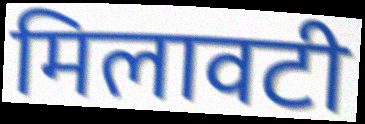
मिलावटी